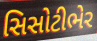
સિસોટીભેર